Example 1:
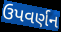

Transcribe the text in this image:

ઉપવર્ણન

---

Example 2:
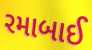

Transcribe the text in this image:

રમાબાઈ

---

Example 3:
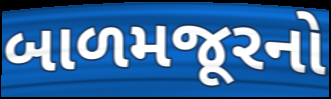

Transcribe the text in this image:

બાળમજૂરનો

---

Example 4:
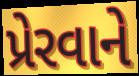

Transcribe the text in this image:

પ્રેરવાને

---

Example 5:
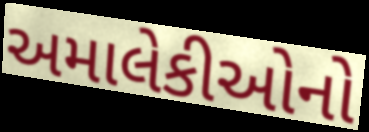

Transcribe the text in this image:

અમાલેકીઓનો